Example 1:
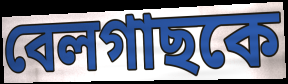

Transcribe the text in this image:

বেলগাছকে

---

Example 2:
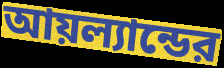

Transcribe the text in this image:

আয়ল্যান্ডের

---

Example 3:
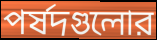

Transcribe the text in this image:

পর্ষদগুলোর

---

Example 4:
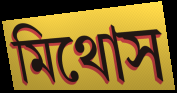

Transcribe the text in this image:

মিথোস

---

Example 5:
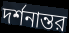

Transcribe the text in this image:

দর্শনান্তর